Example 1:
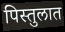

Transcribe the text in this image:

पिस्तुलात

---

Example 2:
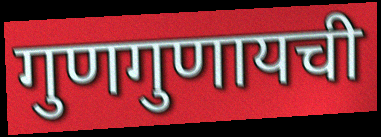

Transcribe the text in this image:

गुणगुणायची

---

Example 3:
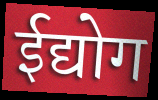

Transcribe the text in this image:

ईद्योग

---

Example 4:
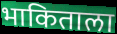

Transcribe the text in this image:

भाकिताला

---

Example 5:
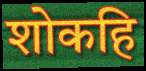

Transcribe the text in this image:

शोकहि